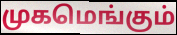
முகமெங்கும்